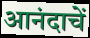
आनंदाचें